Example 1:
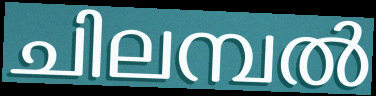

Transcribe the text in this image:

ചിലമ്പൽ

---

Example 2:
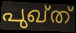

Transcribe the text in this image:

പുഖ്ത്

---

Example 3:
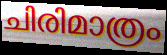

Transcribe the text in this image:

ചിരിമാത്രം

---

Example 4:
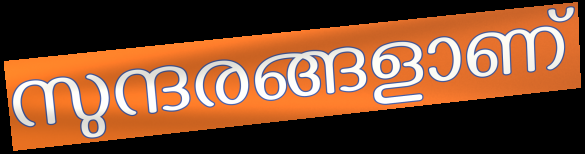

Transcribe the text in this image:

സുന്ദരങ്ങളാണ്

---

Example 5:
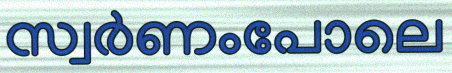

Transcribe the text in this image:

സ്വർണംപോലെ